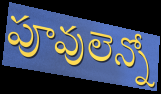
పూవులెన్నో